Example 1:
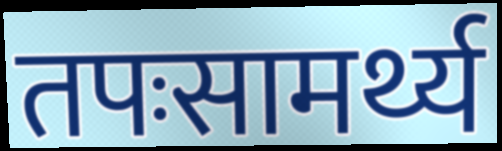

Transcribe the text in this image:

तपःसामर्थ्य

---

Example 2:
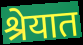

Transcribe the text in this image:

श्रेयात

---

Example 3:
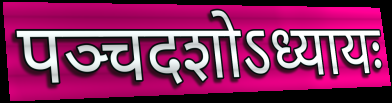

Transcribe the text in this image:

पञ्चदशोऽध्यायः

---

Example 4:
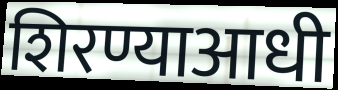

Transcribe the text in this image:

शिरण्याआधी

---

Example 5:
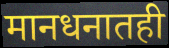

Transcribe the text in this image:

मानधनातही